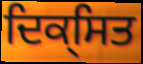
ਦਿਕ੍ਸਿਤ